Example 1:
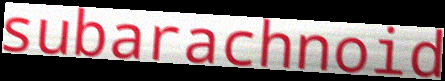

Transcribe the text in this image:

subarachnoid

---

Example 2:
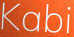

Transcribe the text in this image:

Kabi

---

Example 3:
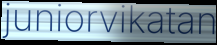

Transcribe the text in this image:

juniorvikatan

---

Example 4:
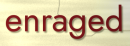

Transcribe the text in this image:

enraged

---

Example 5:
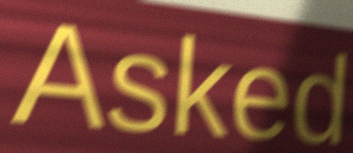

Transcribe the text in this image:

Asked